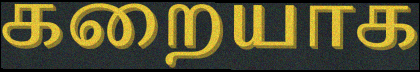
கறையாக